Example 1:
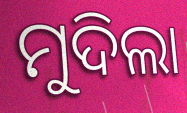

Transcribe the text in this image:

ମୁଦିଲା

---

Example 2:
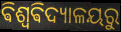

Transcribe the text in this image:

ଵିଶ୍ୱଵିଦ୍ୟାଳୟରୁ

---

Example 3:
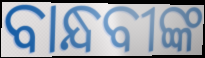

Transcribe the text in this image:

ବାନ୍ଧବୀଙ୍କ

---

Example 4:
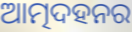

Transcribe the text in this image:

ଆତ୍ମଦହନର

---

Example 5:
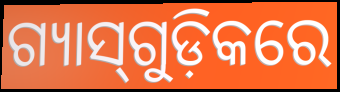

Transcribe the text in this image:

ଗ୍ୟାସ୍‌ଗୁଡ଼ିକରେ